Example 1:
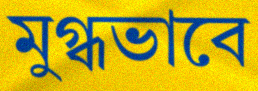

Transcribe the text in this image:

মুগ্ধভাবে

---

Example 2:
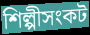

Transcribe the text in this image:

শিল্পীসংকট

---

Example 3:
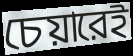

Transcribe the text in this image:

চেয়ারেই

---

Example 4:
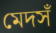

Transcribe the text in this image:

মেদসঁ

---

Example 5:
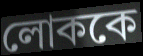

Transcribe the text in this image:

লোককে